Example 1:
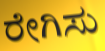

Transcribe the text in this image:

ರೇಗಿಸು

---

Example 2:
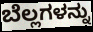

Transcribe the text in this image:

ಬೆಲ್ಲಗಳನ್ನು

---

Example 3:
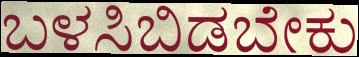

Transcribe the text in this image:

ಬಳಸಿಬಿಡಬೇಕು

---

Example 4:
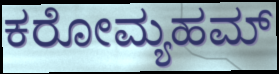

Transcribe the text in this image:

ಕರೋಮ್ಯಹಮ್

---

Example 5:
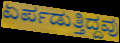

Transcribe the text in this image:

ಏರ್ಪಡುತ್ತಿದ್ದವು